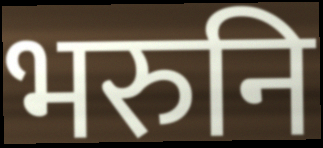
भरुनि